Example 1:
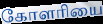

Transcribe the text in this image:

கோளரியை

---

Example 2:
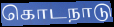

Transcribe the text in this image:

கொடநாடு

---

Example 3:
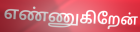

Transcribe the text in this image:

எண்ணுகிறேன்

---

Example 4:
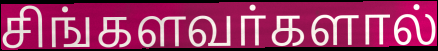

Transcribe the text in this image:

சிங்களவர்களால்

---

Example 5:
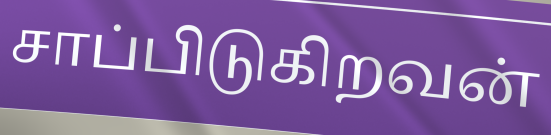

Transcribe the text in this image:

சாப்பிடுகிறவன்